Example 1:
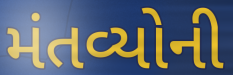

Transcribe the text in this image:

મંતવ્યોની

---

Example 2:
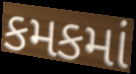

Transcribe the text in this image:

કમકમાં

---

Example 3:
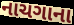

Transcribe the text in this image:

નાચગાના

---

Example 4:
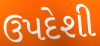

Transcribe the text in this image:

ઉપદેશી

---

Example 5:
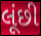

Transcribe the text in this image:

લૂંછી